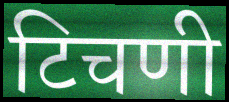
टिचणी